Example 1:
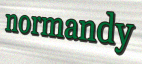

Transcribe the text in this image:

normandy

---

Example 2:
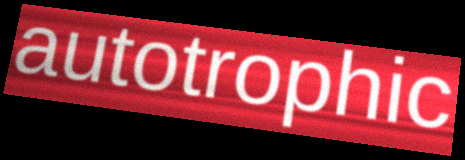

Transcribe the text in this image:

autotrophic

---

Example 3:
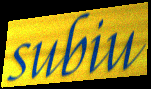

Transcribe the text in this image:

subiu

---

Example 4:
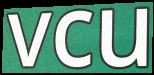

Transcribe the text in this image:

vcu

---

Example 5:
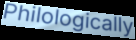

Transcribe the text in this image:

Philologically